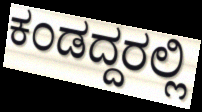
ಕಂಡದ್ದರಲ್ಲಿ